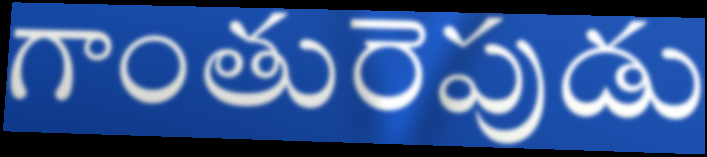
గాంతురెపుడు